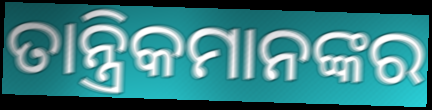
ତାନ୍ତ୍ରିକମାନଙ୍କର